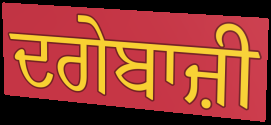
ਦਗੇਬਾਜ਼ੀ